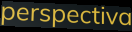
perspectiva